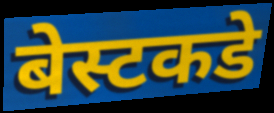
बेस्टकडे